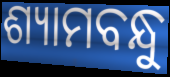
ଶ୍ୟାମବନ୍ଧୁ